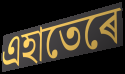
এহাতেৰে